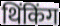
थिंकिंग